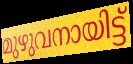
മുഴുവനായിട്ട്